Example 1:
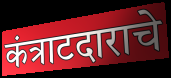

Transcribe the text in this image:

कंत्राटदाराचे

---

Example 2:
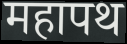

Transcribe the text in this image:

महापथ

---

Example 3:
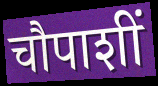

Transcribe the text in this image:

चौपाशीं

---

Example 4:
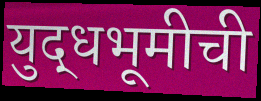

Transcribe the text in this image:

युद्धभूमीची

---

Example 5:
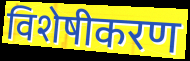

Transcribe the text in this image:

विशेषीकरण